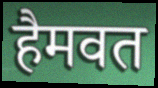
हैमवत